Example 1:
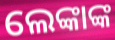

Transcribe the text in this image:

ଲେଙ୍କାଙ୍କ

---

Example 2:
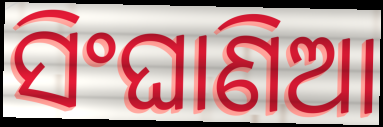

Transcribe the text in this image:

ସିଂଘାଣିଆ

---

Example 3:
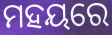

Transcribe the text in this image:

ମହୟରେ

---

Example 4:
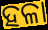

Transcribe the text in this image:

ହଳା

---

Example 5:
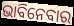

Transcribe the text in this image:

ଭାବିନେବାର